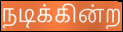
நடிக்கின்ற